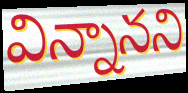
విన్నానని